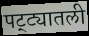
पट्ट्यातली